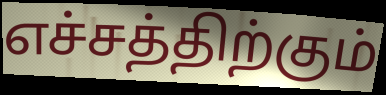
எச்சத்திற்கும்